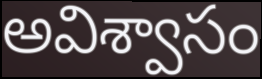
అవిశ్వాసం